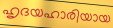
ഹൃദയഹാരിയായ